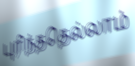
புரிந்ததெல்லாம்